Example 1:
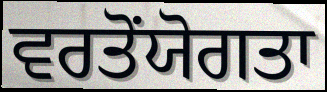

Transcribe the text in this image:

ਵਰਤੋਂਯੋਗਤਾ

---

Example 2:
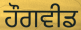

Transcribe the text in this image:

ਹੌਗਵੀਡ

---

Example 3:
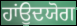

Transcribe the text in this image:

ਹਾਂਉਦਯੋਗ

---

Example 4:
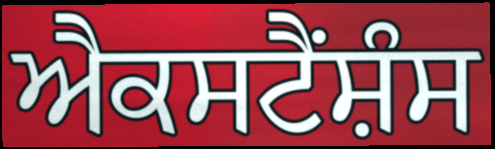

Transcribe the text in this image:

ਐਕਸਟੈਂਸ਼ੰਸ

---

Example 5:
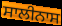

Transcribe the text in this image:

ਸਾਲੀਨਾਸ